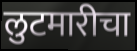
लुटमारीचा